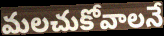
మలచుకోవాలనే